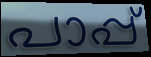
പാപ്പ്